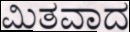
ಮಿತವಾದ